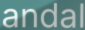
andal